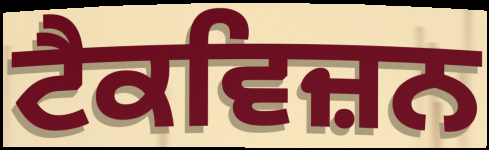
ਟੈਕਵਿਜ਼ਨ